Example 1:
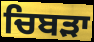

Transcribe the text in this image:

ਚਿਬੜਾ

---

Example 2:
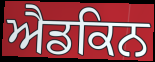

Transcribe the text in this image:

ਐਡਕਿਨ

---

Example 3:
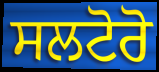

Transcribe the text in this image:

ਸਲਟੋਰੋ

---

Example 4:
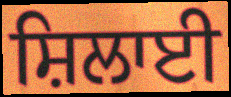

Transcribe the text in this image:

ਸ਼ਿਲਾਈ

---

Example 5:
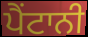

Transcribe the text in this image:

ਪੈਂਟਾਨੀ